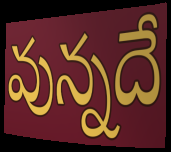
వున్నదే